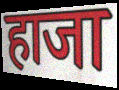
हाजा